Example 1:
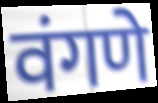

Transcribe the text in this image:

वंगणे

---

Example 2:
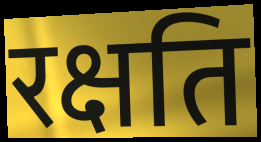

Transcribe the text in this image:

रक्षति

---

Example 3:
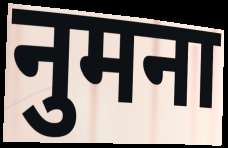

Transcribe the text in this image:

नुमना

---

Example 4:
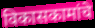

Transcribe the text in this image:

विकासकामांचे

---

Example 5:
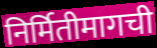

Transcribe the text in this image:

निर्मितीमागची